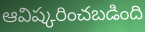
ఆవిష్కరించబడింది